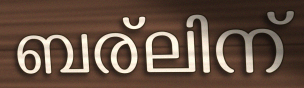
ബര്ലിന്